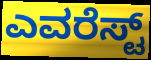
ಎವರೆಸ್ಟ್